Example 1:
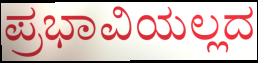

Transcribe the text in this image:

ಪ್ರಭಾವಿಯಲ್ಲದ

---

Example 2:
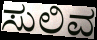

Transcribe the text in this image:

ಸುಲಿವ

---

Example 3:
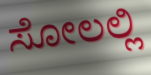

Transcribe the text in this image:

ಸೋಲಲ್ಲಿ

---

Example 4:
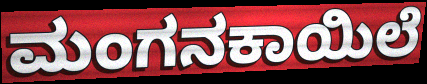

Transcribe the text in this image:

ಮಂಗನಕಾಯಿಲೆ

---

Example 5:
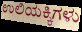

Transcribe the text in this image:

ಉಲಿಯಕ್ಕಿಗಳು